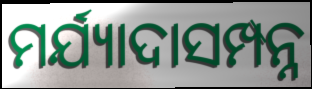
ମର୍ଯ୍ୟାଦାସମ୍ପନ୍ନ